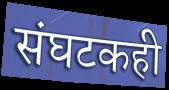
संघटकही